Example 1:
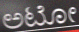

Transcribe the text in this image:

ಅಟೋ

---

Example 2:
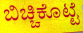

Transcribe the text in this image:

ಬಿಚ್ಚಿಕೊಟ್ಟೆ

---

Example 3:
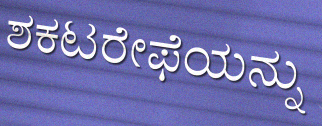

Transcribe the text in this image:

ಶಕಟರೇಫೆಯನ್ನು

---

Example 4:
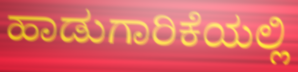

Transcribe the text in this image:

ಹಾಡುಗಾರಿಕೆಯಲ್ಲಿ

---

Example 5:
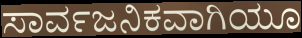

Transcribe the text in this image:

ಸಾರ್ವಜನಿಕವಾಗಿಯೂ